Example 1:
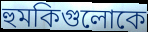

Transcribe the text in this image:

হুমকিগুলোকে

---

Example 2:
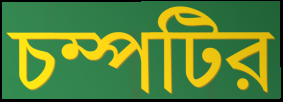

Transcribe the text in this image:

চম্পটির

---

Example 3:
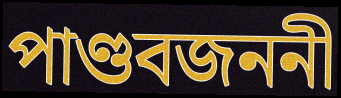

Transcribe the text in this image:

পাণ্ডবজননী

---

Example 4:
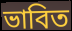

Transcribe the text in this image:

ভাবিত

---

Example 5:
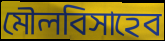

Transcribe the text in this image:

মৌলবিসাহেব